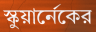
স্কুয়ার্নেকের